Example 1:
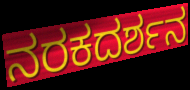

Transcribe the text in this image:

ನರಕದರ್ಶನ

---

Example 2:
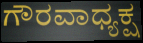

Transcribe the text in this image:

ಗೌರವಾಧ್ಯಕ್ಷ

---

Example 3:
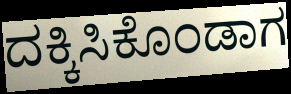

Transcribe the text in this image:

ದಕ್ಕಿಸಿಕೊಂಡಾಗ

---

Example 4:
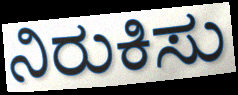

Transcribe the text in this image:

ನಿರುಕಿಸು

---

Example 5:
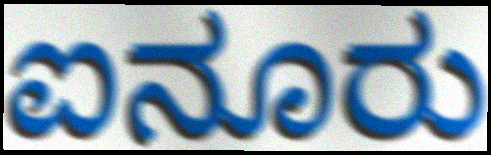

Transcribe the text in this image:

ಐನೂರು